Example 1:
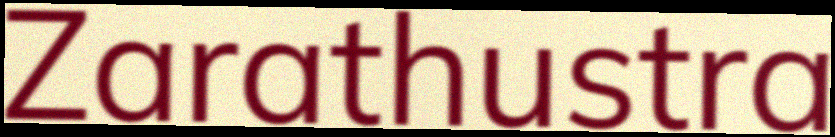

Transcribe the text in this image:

Zarathustra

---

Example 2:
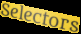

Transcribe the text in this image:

Selectors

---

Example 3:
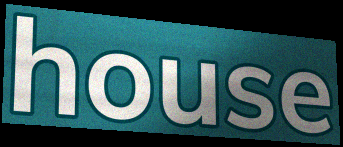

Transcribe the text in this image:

house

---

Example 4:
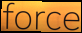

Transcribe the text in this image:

force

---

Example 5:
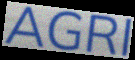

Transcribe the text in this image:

AGRI